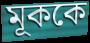
মূককে